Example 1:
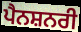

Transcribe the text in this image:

ਪੈਨਸ਼ਨਰੀ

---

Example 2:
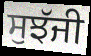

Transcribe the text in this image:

ਸੁਝੱਜੀ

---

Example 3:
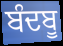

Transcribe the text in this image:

ਬੰਦਬੂ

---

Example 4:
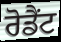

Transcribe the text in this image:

ਰੋਡੈਂਟ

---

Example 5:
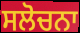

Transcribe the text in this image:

ਸਲੋਚਨਾ